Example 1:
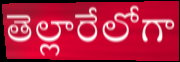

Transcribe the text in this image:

తెల్లారేలోగా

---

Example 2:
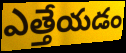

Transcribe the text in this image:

ఎత్తేయడం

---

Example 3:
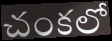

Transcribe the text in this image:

చంకలో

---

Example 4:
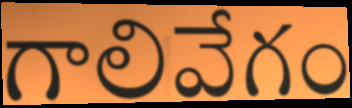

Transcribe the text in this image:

గాలివేగం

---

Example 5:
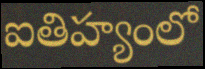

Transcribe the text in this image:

ఐతిహ్యంలో